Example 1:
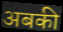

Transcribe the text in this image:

अबकी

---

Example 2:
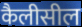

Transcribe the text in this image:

कैलीसील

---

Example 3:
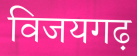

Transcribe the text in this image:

विजयगढ़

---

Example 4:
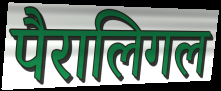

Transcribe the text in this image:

पैरालिगल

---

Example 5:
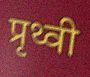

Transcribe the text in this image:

प्रृथ्वी